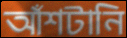
আঁশটানি